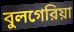
বুলগেরিয়া